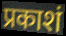
प्रकाशं